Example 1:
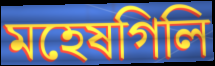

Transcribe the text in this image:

মহেষগিলি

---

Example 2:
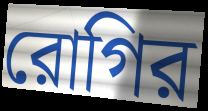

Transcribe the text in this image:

রোগির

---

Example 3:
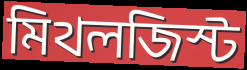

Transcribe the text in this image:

মিথলজিস্ট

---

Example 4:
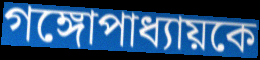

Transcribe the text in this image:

গঙ্গোপাধ্যায়কে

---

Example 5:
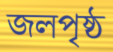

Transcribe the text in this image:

জলপৃষ্ঠ